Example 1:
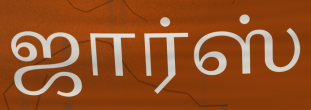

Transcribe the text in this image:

ஜார்ஸ்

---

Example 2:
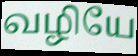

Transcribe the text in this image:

வழியே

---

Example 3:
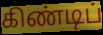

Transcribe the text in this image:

கிண்டிப்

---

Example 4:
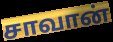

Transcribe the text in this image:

சாவான்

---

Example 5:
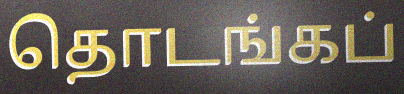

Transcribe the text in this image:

தொடங்கப்